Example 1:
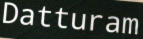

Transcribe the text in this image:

Datturam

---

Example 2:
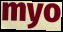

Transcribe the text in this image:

myo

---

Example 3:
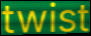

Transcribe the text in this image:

twist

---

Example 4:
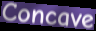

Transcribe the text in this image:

Concave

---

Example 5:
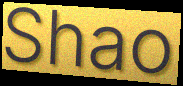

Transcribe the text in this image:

Shao